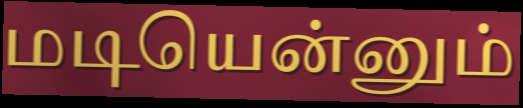
மடியென்னும்